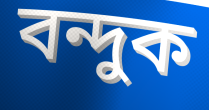
বন্দুক